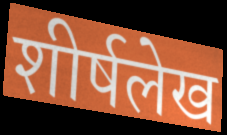
शीर्षलेख